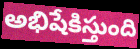
అభిషేకిస్తుంది